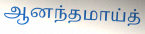
ஆனந்தமாய்த்